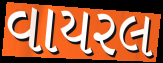
વાયરલ